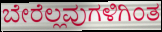
ಬೇರೆಲ್ಲವುಗಳಿಗಿಂತ